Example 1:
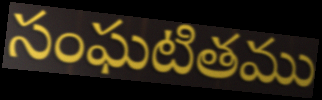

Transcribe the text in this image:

సంఘటితము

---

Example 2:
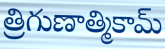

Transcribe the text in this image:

త్రిగుణాత్మికామ్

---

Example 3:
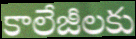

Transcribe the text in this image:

కాలేజీలకు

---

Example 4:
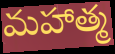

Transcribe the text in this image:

మహాత్మ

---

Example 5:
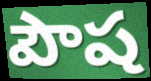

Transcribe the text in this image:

పౌష